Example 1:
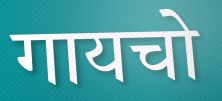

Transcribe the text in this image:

गायचो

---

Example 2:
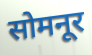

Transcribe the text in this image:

सोमनूर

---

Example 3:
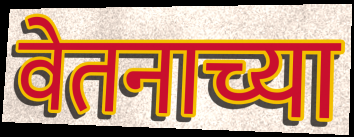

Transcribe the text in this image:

वेतनाच्या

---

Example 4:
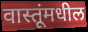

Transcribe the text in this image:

वास्तूंमधील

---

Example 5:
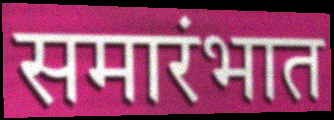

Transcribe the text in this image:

समारंभात